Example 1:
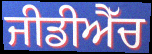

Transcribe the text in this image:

ਜੀਡੀਐੱਚ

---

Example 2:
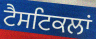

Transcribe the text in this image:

ਟੈਸਟਿਕਲਾਂ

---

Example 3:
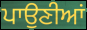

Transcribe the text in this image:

ਪਾਉਣੀਆਂ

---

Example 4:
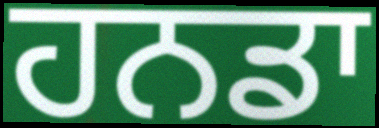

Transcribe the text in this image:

ਹਨਡਾ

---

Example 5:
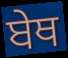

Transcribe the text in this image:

ਬੇਥ